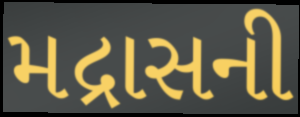
મદ્રાસની